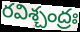
రవిశ్చంద్రః